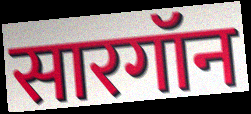
सारगॉन